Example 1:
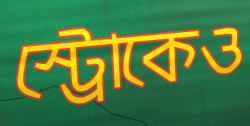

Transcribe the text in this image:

স্ট্রোকেও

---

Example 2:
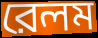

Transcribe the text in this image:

রেলম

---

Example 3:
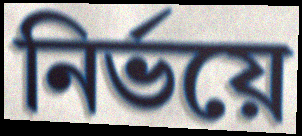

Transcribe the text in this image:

নির্ভয়ে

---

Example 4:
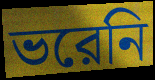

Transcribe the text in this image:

ভরেনি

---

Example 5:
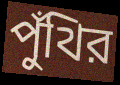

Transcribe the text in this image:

পুঁথির